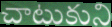
చాటుకుని